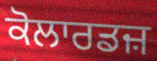
ਕੋਲਾਰਡਜ਼